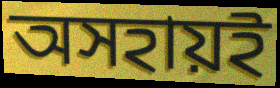
অসহায়ই